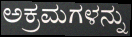
ಅಕ್ರಮಗಳನ್ನು